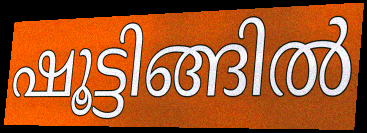
ഷൂട്ടിങ്ങിൽ